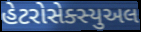
હેટરોસેક્સ્યુઅલ